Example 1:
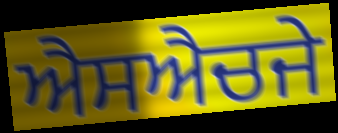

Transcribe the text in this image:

ਐਸਐਚਜੇ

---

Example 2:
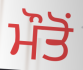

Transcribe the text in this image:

ਮੌਤੋਂ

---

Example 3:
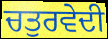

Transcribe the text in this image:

ਚਤੁਰਵੇਦੀ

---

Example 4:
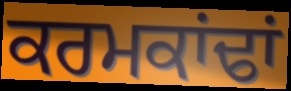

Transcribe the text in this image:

ਕਰਮਕਾਂਢਾਂ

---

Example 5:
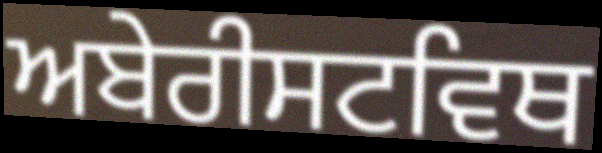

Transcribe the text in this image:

ਅਬੇਰੀਸਟਵਿਥ